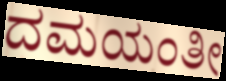
ದಮಯಂತೀ